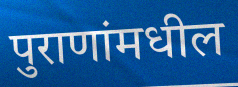
पुराणांमधील